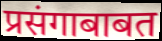
प्रसंगाबाबत